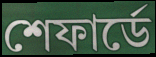
শেফার্ডে